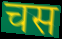
चस